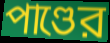
পাণ্ডের